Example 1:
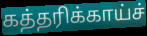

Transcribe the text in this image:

கத்தரிக்காய்ச்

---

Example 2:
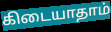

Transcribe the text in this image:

கிடையாதாம்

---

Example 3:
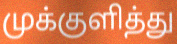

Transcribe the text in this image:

முக்குளித்து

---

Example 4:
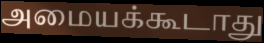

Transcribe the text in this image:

அமையக்கூடாது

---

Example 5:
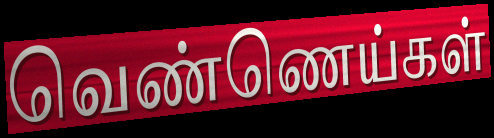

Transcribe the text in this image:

வெண்ணெய்கள்